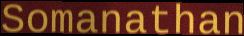
Somanathan